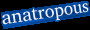
anatropous